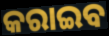
କରାଇବ